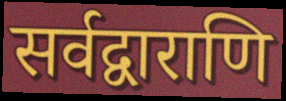
सर्वद्वाराणि